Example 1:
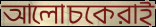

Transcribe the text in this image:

আলোচকেরাই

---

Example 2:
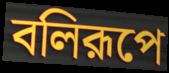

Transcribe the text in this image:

বলিরূপে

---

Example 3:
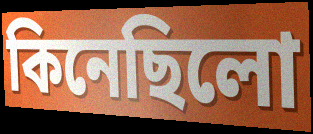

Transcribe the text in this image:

কিনেছিলো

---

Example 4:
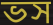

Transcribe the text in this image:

ভস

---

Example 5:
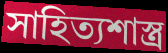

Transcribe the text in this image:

সাহিত্যশাস্ত্র